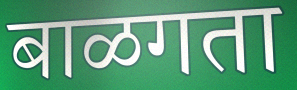
बाळगता